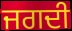
ਜਗਦੀ